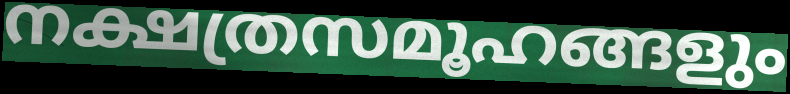
നക്ഷത്രസമൂഹങ്ങളും